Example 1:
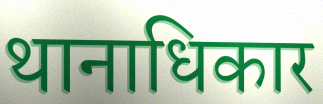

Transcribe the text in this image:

थानाधिकार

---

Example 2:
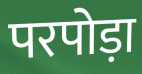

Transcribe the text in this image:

परपोड़ा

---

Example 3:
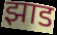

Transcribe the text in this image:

झाड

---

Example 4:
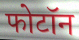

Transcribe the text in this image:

फोटॉन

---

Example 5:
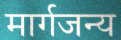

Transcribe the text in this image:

मार्गजन्य